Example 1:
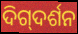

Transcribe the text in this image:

ଦିଗ୍‌ଦର୍ଶନ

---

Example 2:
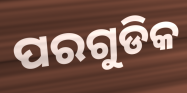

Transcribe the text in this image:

ପରଗୁଡିକ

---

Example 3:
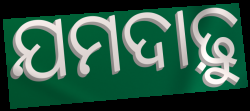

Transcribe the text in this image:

ଯମଦାଢ଼ୁ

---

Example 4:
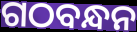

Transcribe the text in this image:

ଗଠବନ୍ଧନ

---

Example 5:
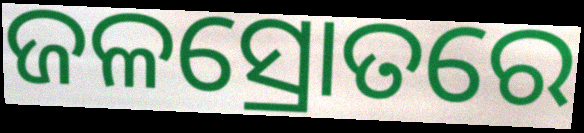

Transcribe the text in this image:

ଜଳସ୍ରୋତରେ